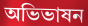
অভিভাষন